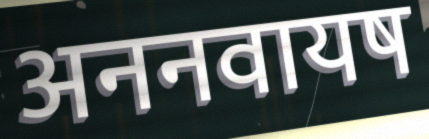
अननवायष